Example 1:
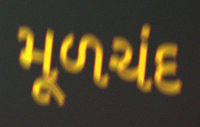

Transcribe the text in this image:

મૂળચંદ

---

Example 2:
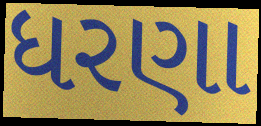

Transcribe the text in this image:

ધરણા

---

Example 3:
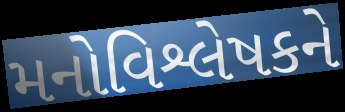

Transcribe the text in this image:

મનોવિશ્લેષકને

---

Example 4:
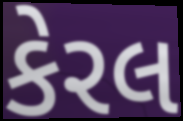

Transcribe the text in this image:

કેરલ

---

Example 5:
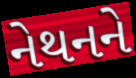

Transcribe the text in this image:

નેથનને